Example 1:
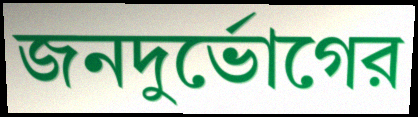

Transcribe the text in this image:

জনদুর্ভোগের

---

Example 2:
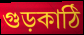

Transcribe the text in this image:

গুড়কাঠি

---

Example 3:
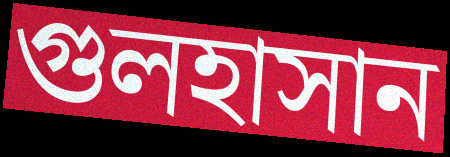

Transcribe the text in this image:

গুলহাসান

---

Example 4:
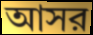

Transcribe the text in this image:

আসর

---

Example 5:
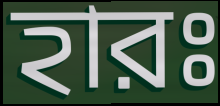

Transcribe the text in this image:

হারঃ